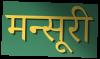
मन्सूरी